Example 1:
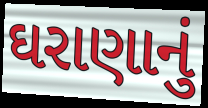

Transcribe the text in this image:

ઘરાણાનું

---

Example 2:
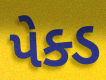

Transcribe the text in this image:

પેક્ડ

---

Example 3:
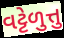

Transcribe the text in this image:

વટ્ટેળુત્તુ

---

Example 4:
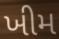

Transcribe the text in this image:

ખીમ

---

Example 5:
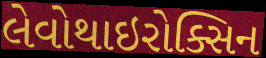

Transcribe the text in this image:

લેવોથાઇરોક્સિન